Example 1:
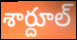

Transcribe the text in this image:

శార్దూల్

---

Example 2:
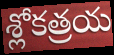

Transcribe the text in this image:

శ్లోకత్రయ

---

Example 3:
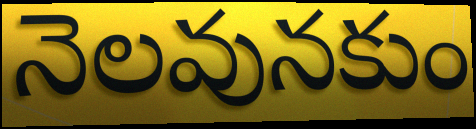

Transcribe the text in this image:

నెలవునకుం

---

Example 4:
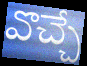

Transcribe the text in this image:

వొచ్చే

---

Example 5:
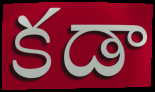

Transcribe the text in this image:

కడా